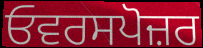
ਓਵਰਸਪੋਜ਼ਰ